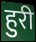
हुरी